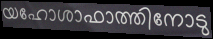
യഹോശാഫാത്തിനോടു